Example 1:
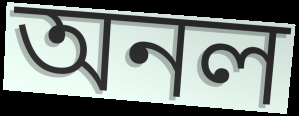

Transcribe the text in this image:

অনল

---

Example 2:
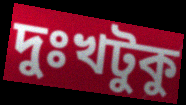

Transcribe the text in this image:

দুঃখটুকু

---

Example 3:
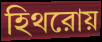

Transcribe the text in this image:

হিথরোয়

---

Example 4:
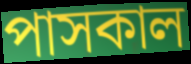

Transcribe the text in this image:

পাসকাল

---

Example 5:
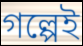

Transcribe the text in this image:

গল্পেই